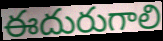
ఈదురుగాలి